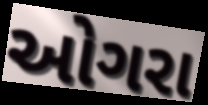
ઓગરા